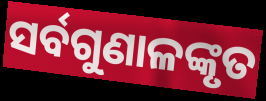
ସର୍ବଗୁଣାଳଙ୍କୃତ